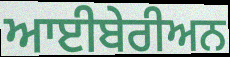
ਆਈਬੇਰੀਅਨ